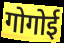
गोगोई